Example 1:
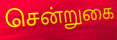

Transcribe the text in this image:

சென்றுகை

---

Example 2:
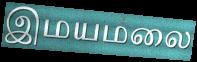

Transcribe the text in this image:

இமயமலை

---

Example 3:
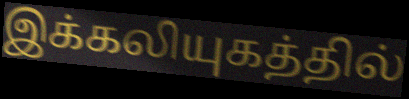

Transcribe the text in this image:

இக்கலியுகத்தில்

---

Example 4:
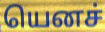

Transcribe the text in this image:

யெனச்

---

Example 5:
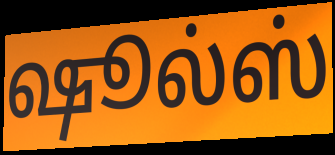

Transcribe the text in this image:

ஷூல்ஸ்